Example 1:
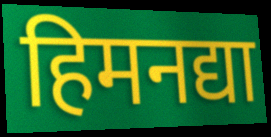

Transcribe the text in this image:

हिमनद्या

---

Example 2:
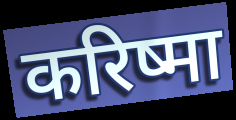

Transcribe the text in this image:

करिष्मा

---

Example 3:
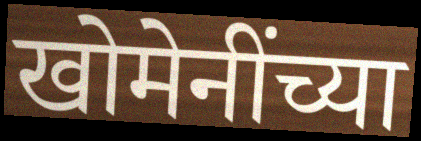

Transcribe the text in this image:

खोमेनींच्या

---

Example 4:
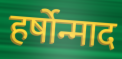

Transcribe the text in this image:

हर्षोन्माद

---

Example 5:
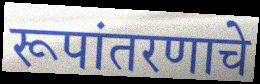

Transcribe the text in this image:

रूपांतरणाचे